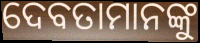
ଦେବତାମାନଙ୍କୁ